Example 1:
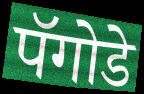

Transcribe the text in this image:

पॅगोडे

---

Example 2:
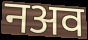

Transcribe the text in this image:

नअव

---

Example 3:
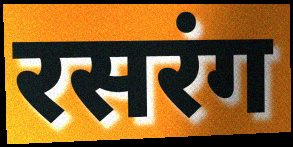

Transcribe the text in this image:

रसरंग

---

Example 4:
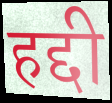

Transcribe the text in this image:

हद्दी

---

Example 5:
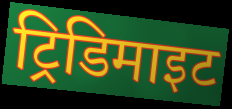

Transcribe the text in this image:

ट्रिडिमाइट